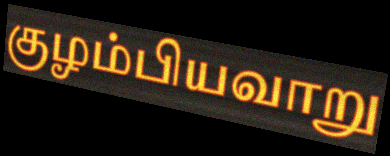
குழம்பியவாறு